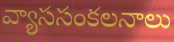
వ్యాససంకలనాలు